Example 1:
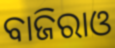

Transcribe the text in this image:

ବାଜିରାଓ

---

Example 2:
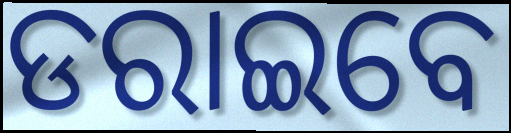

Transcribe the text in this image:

ଡରାଇବେ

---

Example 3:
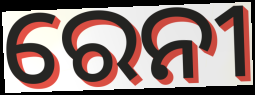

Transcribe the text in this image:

ରେନୀ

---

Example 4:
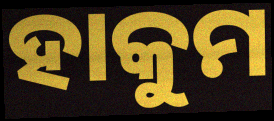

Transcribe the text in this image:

ହାକୁମ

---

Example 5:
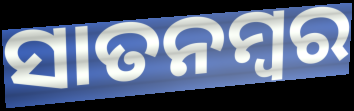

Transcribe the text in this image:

ସାତନମ୍ବର